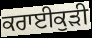
ਕਰਾਈਕੁੜੀ